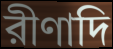
রীণাদি